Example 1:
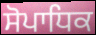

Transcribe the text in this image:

ਸੋਪਾਧਿਕ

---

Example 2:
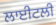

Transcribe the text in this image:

ਲਾਈਟਲੀ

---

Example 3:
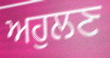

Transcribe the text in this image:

ਅਹੁਲਣ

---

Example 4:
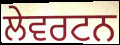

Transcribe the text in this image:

ਲੇਵਰਟਨ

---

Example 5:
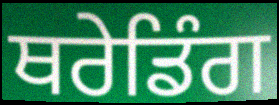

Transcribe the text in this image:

ਥਰੇਡਿੰਗ